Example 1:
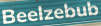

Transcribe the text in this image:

Beelzebub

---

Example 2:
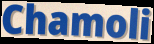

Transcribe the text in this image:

Chamoli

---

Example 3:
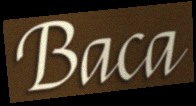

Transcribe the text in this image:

Baca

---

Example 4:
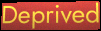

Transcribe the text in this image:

Deprived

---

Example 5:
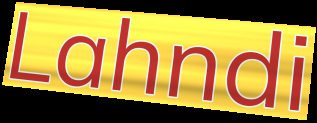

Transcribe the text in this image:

Lahndi